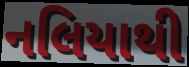
નલિયાથી